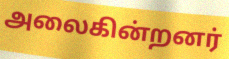
அலைகின்றனர்